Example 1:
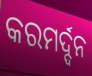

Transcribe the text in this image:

କରମର୍ଦ୍ଦନ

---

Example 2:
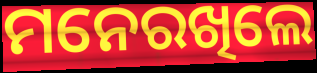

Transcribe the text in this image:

ମନେରଖିଲେ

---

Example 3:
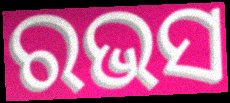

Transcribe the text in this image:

ରଭସ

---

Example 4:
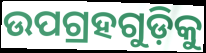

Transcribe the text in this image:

ଉପଗ୍ରହଗୁଡ଼ିକୁ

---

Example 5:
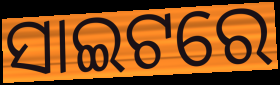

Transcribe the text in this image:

ସାଇଟରେ